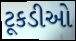
ટૂકડીઓ